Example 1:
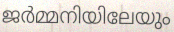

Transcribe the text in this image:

ജർമ്മനിയിലേയും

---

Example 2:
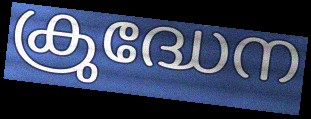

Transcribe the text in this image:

ക്രുദ്ധേന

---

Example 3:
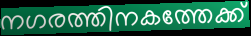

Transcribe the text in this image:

നഗരത്തിനകത്തേക്ക്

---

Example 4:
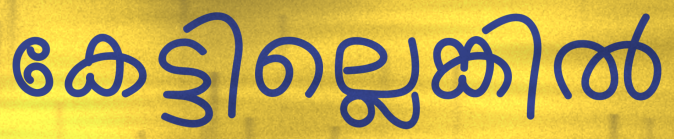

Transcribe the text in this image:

കേട്ടില്ലെങ്കിൽ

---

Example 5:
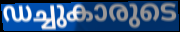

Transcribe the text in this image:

ഡച്ചുകാരുടെ